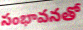
సంభావనతో